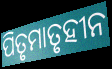
ପିତୃମାତୃହୀନ